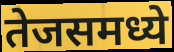
तेजसमध्ये